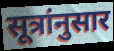
सूत्रांनुसार